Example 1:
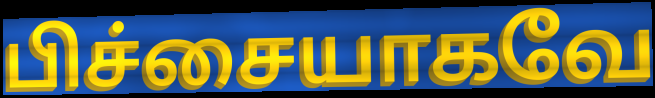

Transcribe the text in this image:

பிச்சையாகவே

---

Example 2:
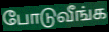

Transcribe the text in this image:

போடுவீங்க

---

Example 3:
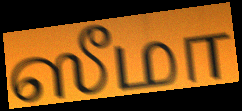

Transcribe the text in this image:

ஸீமா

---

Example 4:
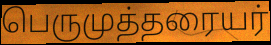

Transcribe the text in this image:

பெருமுத்தரையர்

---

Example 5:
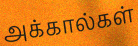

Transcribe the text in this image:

அக்கால்கள்